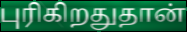
புரிகிறதுதான்